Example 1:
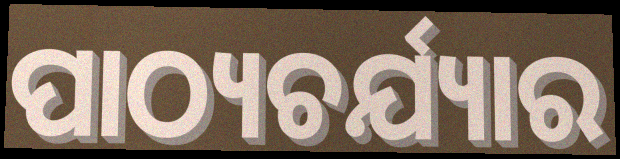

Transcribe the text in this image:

ପାଠ୍ୟଚର୍ଯ୍ୟାର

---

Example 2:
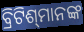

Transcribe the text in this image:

ବ୍ରିଟିଶ୍‌ମାନଙ୍କ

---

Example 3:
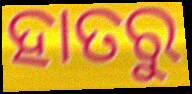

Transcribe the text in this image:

ହାତରୁ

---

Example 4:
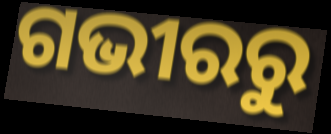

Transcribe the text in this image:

ଗଭୀରରୁ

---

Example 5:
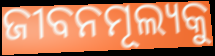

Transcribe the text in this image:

ଜୀବନମୂଲ୍ୟକୁ